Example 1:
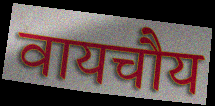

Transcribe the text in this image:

वायचौय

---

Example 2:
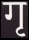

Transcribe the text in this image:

गृ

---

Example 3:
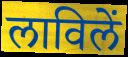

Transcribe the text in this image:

लाविलें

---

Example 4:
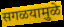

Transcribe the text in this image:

सगळयामुळे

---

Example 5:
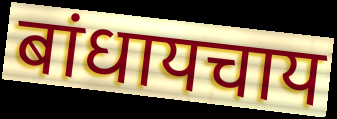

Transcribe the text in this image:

बांधायचाय